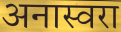
अनास्वरा